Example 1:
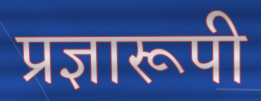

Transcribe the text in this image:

प्रज्ञारूपी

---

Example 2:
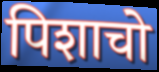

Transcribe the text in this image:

पिशाचो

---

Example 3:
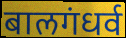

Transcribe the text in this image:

बालगंधर्व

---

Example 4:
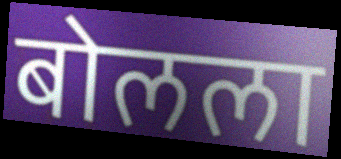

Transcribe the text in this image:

बोलला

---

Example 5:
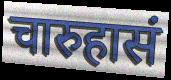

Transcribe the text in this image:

चारुहासं